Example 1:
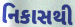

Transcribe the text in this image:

નિકાસથી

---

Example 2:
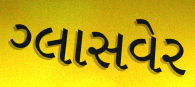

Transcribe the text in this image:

ગ્લાસવેર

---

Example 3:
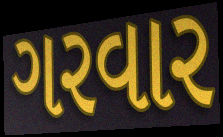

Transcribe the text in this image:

ગરવાર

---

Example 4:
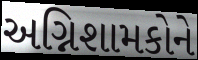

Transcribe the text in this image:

અગ્નિશામકોને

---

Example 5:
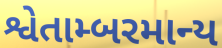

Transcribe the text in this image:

શ્વેતામ્બરમાન્ય